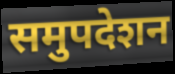
समुपदेशन